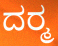
ದರ‍್ಮ